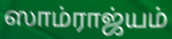
ஸாம்ராஜ்யம்